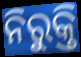
ନିରୁକ୍ତି